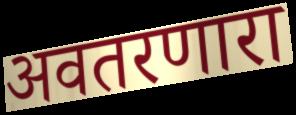
अवतरणारा